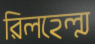
ৱিলহেল্ম